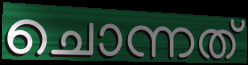
ചൊന്നത്